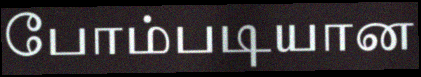
போம்படியான